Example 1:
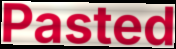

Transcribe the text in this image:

Pasted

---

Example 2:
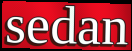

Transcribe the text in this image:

sedan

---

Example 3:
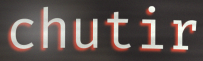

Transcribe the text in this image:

chutir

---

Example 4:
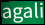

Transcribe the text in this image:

agali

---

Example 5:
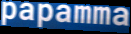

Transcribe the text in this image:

papamma